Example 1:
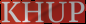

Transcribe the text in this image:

KHUP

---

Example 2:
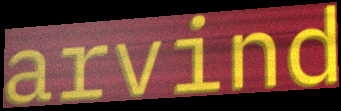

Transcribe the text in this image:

arvind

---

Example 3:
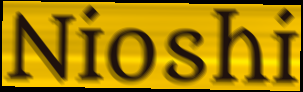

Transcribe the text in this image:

Nioshi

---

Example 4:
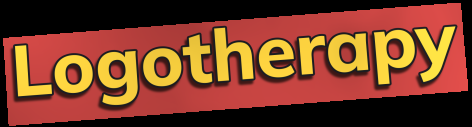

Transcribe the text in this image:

Logotherapy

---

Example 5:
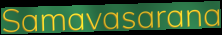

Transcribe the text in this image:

Samavasarana